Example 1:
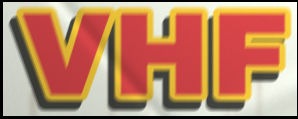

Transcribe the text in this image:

VHF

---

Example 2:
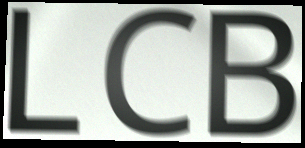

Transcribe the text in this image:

LCB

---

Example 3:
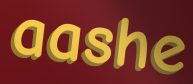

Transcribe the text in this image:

aashe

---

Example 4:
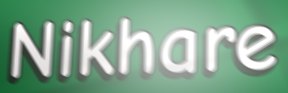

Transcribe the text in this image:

Nikhare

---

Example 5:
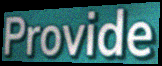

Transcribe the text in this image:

Provide